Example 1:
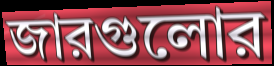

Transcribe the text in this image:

জারগুলোর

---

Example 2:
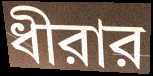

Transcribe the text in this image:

ধীরার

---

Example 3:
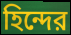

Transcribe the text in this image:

হিন্দের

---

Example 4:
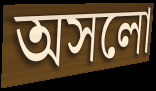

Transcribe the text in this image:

অসলো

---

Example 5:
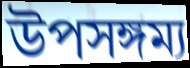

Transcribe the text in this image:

উপসঙ্গম্য